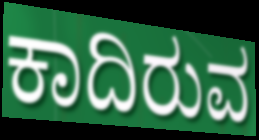
ಕಾದಿರುವ